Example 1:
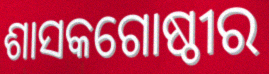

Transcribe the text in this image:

ଶାସକଗୋଷ୍ଠୀର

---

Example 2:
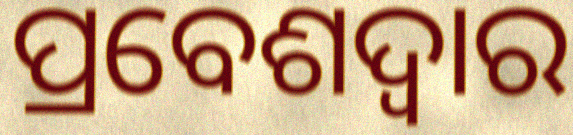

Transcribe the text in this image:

ପ୍ରବେଶଦ୍ଵାର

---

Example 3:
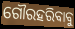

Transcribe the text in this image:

ଗୌରହରିବାବୁ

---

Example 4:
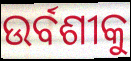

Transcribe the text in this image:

ଉର୍ବଶୀକୁ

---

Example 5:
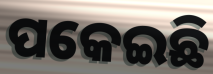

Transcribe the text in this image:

ପକେଇଛି